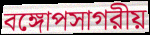
বঙ্গোপসাগরীয়